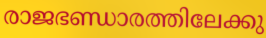
രാജഭണ്ഡാരത്തിലേക്കു